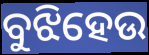
ବୁଝିହେଉ